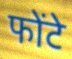
फोंटे